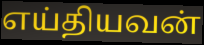
எய்தியவன்